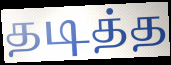
தடித்த